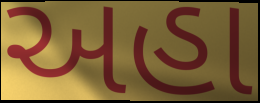
અહા